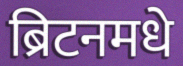
ब्रिटनमधे